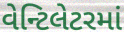
વેન્ટિલેટરમાં